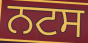
ਨਟਸ